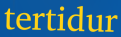
tertidur